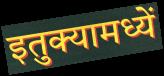
इतुक्यामध्यें